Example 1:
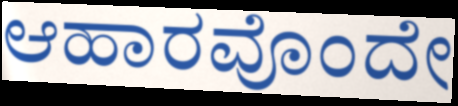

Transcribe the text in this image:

ಆಹಾರವೊಂದೇ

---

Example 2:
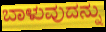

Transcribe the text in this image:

ಬಾಳುವುದನ್ನು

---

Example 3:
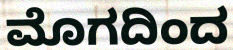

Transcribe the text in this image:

ಮೊಗದಿಂದ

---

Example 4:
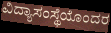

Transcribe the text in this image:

ವಿದ್ಯಾಸಂಸ್ಥೆಯೊಂದರ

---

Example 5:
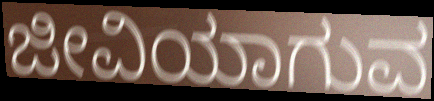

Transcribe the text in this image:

ಜೀವಿಯಾಗುವ